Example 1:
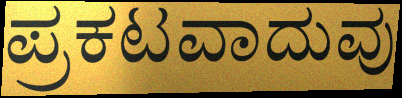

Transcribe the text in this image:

ಪ್ರಕಟವಾದುವು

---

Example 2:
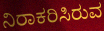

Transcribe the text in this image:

ನಿರಾಕರಿಸಿರುವ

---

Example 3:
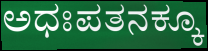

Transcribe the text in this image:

ಅಧಃಪತನಕ್ಕೂ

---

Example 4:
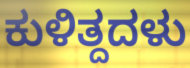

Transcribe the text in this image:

ಕುಳಿತ್ದದಳು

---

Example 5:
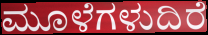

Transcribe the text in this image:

ಮೂಳೆಗಳುದಿರೆ